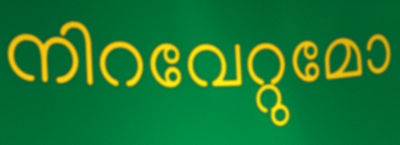
നിറവേറ്റുമോ